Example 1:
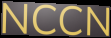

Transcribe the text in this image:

NCCN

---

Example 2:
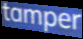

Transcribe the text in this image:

tamper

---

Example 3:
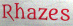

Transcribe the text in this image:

Rhazes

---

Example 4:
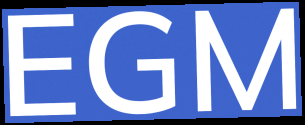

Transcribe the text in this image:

EGM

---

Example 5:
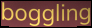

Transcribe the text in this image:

boggling